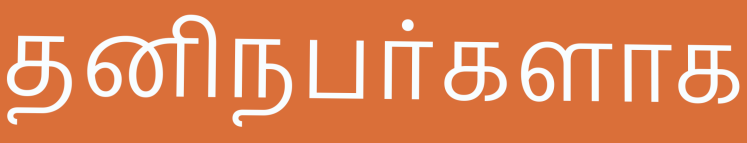
தனிநபர்களாக